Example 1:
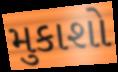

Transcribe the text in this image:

મુકાશો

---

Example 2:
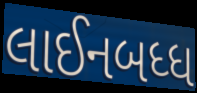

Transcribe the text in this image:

લાઈનબધ્ધ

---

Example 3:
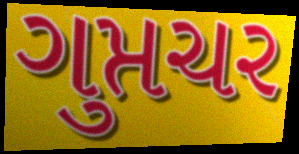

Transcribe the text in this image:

ગુપ્તચર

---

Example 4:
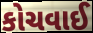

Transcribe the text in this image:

કોચવાઈ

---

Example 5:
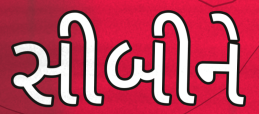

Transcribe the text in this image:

સીબીને